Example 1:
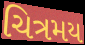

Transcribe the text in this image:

ચિત્રમય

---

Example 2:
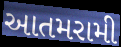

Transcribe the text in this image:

આતમરામી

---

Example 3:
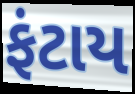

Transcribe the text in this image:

ફંટાય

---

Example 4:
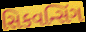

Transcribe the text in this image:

સિકવન્સિંગ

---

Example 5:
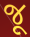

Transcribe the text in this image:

જૂ